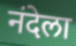
नंदेला